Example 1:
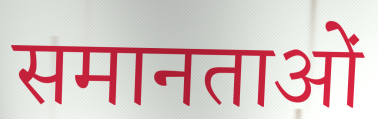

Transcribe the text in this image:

समानताओं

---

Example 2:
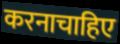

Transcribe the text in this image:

करनाचाहिए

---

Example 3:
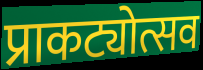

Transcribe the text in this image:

प्राकट्योत्सव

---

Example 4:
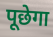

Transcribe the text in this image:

पूछेगा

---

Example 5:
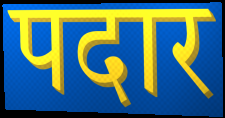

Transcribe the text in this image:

पदार